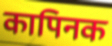
कापिनक